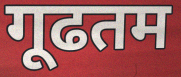
गूढतम